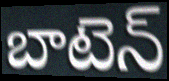
బాటెన్